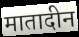
मातादीन